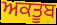
ਅਕਤੂਬ